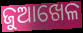
ଜୁଆଖେଳ